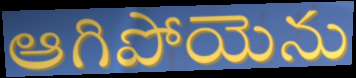
ఆగిపోయెను